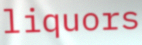
liquors